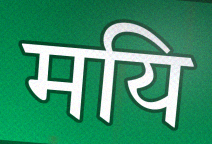
मयि